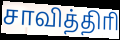
சாவித்திரி